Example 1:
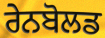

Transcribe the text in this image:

ਰੇਨਬੋਲਡ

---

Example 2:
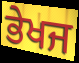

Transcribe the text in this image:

ਭੇਖਜ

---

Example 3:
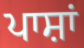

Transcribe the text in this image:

ਪਾਸ਼ਾਂ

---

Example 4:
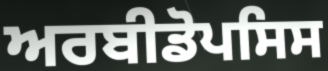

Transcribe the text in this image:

ਅਰਬੀਡੋਪਸਿਸ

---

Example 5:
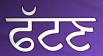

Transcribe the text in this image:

ਫੱਟਣ